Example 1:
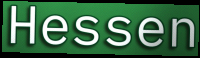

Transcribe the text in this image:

Hessen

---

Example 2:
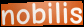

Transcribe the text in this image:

nobilis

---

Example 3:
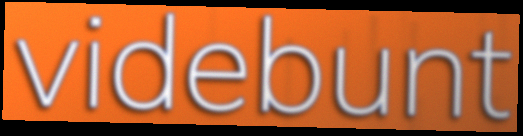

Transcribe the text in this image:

videbunt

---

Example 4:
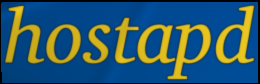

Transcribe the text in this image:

hostapd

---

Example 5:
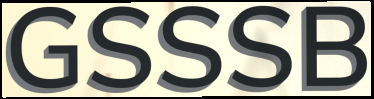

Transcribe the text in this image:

GSSSB